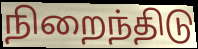
நிறைந்திடு